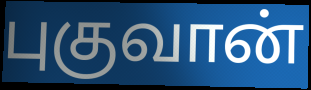
புகுவான்